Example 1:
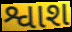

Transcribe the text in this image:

શ્વાશ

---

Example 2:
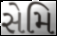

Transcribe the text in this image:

સેમિ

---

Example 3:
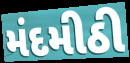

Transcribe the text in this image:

મંદમીઠી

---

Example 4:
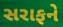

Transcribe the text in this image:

સરાફને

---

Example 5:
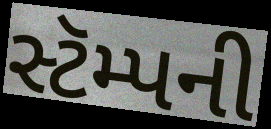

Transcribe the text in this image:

સ્ટૅમ્પની